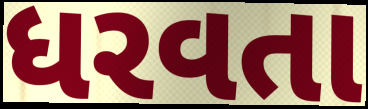
ધરવતા